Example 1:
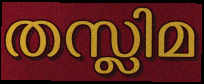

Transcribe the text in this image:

തസ്ലിമ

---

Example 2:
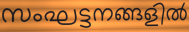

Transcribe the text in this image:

സംഘട്ടനങ്ങളിൽ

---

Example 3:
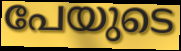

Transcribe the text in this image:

പേയുടെ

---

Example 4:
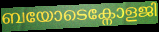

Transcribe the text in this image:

ബയോടെക്നോളജി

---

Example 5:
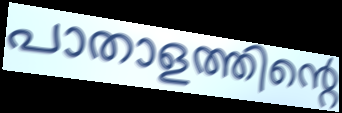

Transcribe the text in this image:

പാതാളത്തിന്റെ